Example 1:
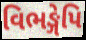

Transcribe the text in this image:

વિભઙ્ગેપિ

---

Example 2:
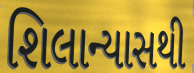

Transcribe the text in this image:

શિલાન્યાસથી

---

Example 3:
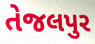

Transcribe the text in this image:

તેજલપુર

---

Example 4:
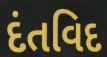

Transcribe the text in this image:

દંતવિદ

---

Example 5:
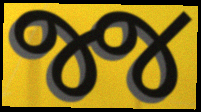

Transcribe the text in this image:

જ્જ